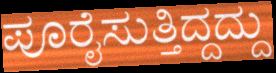
ಪೂರೈಸುತ್ತಿದ್ದದ್ದು